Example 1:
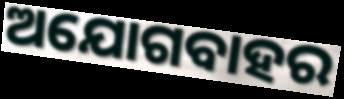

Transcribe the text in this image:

ଅଯୋଗବାହର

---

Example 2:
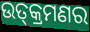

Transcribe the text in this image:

ଉତ୍‍କ୍ରମଣର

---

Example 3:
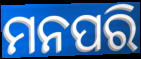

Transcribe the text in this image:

ମନପରି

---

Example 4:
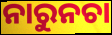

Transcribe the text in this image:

ନାରୁନଚା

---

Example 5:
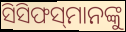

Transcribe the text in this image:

ସିସିଫସ୍‌ମାନଙ୍କୁ